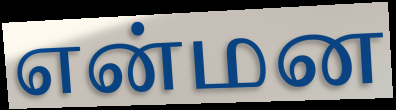
என்மன